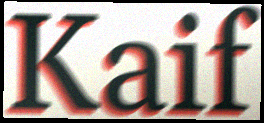
Kaif